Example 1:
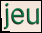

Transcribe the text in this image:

jeu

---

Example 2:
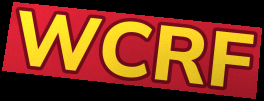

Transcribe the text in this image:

WCRF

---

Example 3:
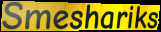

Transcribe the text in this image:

Smeshariks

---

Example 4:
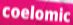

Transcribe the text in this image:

coelomic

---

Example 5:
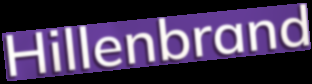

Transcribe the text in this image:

Hillenbrand